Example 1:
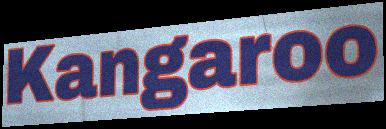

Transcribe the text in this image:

Kangaroo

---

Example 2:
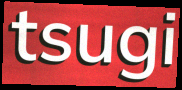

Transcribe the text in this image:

tsugi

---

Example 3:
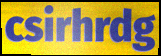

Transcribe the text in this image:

csirhrdg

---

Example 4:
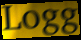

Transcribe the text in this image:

Logg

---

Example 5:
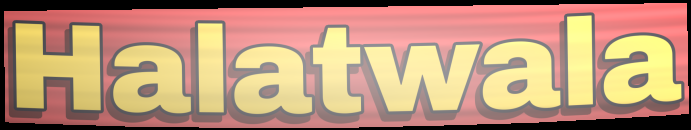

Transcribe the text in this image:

Halatwala